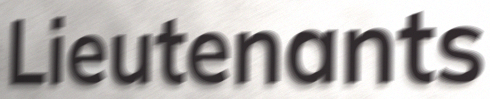
Lieutenants